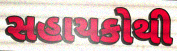
સહાયકોથી